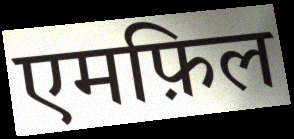
एमफ़िल